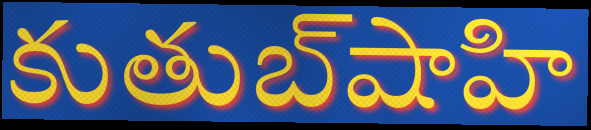
కుతుబ్‌షాహి